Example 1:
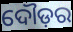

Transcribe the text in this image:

ଦୌଡ଼ର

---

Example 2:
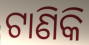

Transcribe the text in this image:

ଟାଣିକି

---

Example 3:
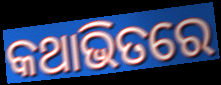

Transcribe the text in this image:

କଥାଭିତରେ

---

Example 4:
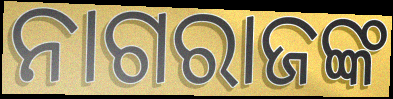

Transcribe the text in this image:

ନାଗରାଜଙ୍କ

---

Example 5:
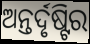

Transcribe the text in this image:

ଅନ୍ତର୍ଦୃଷ୍ଟିର